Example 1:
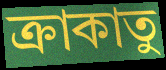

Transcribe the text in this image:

ক্রাকাতু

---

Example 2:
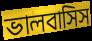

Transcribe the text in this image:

ভালবাসিস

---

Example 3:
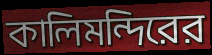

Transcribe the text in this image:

কালিমন্দিরের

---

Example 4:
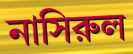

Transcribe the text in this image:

নাসিরুল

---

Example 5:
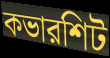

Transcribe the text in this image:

কভারশিট